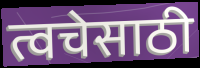
त्वचेसाठी